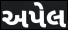
અપેલ